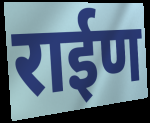
राईण